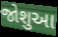
જોશુઆ